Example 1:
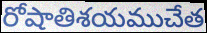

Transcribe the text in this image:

రోషాతిశయముచేత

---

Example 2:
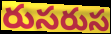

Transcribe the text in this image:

రుసరుస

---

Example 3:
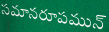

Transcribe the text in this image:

సమానరూపమున్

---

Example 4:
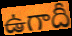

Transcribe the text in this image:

ఉగాదీ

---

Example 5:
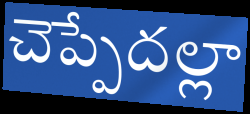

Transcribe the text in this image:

చెప్పేదల్లా